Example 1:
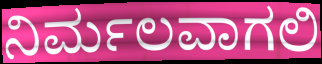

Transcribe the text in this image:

ನಿರ್ಮಲವಾಗಲಿ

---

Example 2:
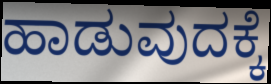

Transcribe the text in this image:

ಹಾಡುವುದಕ್ಕೆ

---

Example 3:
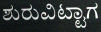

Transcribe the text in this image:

ಶುರುವಿಟ್ಟಾಗ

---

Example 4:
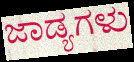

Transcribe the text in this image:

ಜಾಡ್ಯಗಳು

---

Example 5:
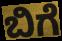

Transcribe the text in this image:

ಬಿಗೆ